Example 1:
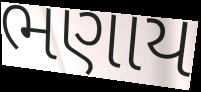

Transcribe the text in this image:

ભણાય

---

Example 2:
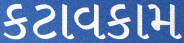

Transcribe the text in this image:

કટાવકામ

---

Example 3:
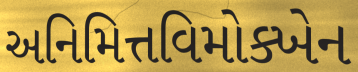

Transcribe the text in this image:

અનિમિત્તવિમોક્ખેન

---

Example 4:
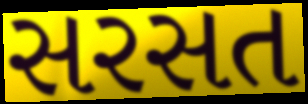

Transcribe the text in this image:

સરસત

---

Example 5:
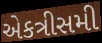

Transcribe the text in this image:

એકત્રીસમી